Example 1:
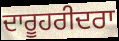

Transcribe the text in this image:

ਦਾਰੂਹਰੀਦਰਾ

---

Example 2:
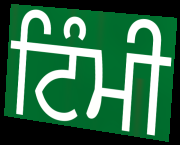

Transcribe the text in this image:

ਟਿੰਮੀ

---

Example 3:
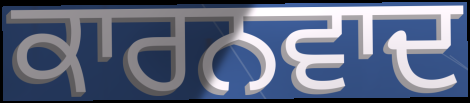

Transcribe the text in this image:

ਕਾਰਨਵਾਦ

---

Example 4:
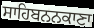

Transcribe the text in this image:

ਸਾਹਿਬਨਨਕਾਣਾ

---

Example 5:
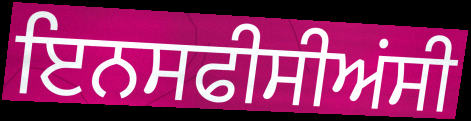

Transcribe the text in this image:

ਇਨਸਫੀਸੀਅਂਸੀ